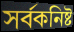
সর্বকনিষ্ট